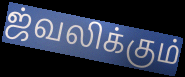
ஜ்வலிக்கும்